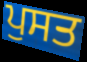
ਪੁਸਤ